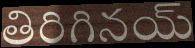
తిరిగినయ్